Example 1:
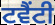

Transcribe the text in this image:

ਟਵੈਂਟੀ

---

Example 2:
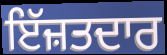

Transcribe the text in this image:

ਇੱਜ਼ਤਦਾਰ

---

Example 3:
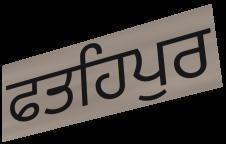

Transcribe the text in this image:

ਫਤਹਿਪੁਰ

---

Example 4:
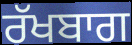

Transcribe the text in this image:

ਰੱਖਬਾਗ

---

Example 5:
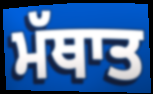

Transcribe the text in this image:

ਮੱਥਾਤ